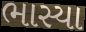
ભાસ્યા